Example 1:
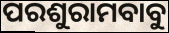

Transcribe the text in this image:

ପରଶୁରାମବାବୁ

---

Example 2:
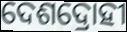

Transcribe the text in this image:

ଦେଶଦ୍ରୋହୀ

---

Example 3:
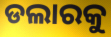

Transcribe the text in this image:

ଡଲାରକୁ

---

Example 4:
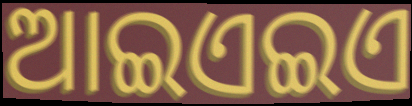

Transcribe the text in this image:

ଆଇଏଇଏ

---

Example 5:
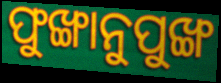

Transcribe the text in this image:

ଫୁଙ୍ଖାନୁପୁଙ୍ଖ